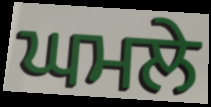
ਘਮਲੇ